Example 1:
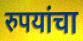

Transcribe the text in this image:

रुपयांचा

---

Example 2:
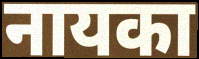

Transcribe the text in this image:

नायका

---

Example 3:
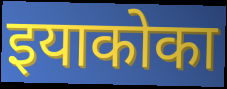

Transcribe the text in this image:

इयाकोका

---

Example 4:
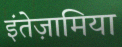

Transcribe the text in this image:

इंतेज़ामिया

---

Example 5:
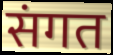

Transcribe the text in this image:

संगत